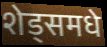
शेड्समधे